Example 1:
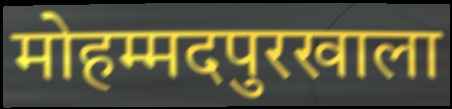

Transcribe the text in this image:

मोहम्मदपुरखाला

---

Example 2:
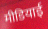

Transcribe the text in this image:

मीडियाई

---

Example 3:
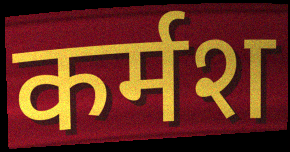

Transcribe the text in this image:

कर्मश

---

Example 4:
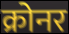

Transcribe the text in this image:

क्रोनर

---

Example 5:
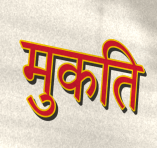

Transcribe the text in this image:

मुकति